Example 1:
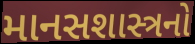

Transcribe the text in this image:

માનસશાસ્ત્રનો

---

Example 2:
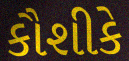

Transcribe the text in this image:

કૌશીકે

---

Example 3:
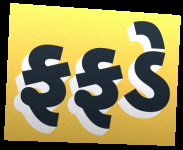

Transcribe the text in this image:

ફફડે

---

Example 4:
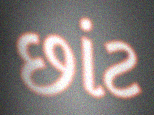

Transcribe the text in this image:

છાંટ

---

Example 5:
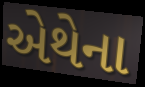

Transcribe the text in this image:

એથેના